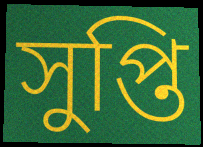
সুপ্তি